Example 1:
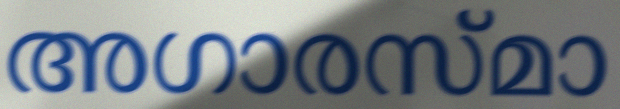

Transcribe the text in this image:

അഗാരസ്മാ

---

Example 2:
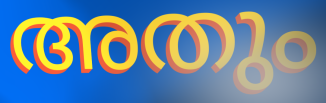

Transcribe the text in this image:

അതും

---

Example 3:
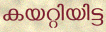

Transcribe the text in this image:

കയറ്റിയിട്ട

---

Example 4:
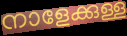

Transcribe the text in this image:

നാളേക്കുള്ള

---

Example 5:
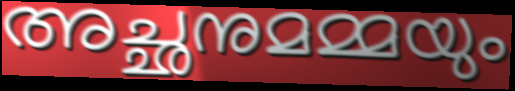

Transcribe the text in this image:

അച്ഛനുമമ്മയും